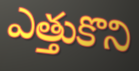
ఎత్తుకొని